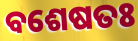
ବଶେଷତଃ